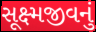
સૂક્ષ્મજીવનું